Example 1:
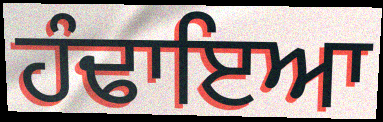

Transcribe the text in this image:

ਹੰਢਾਇਆ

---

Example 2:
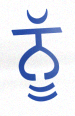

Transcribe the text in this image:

ਨੂੱ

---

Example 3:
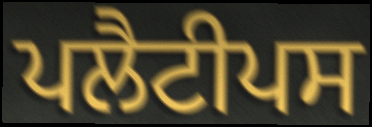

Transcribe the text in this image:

ਪਲੈਟੀਪਸ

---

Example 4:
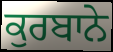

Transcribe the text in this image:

ਕੁਰਬਾਨੇ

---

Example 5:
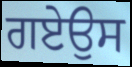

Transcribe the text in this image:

ਗਏਉਸ